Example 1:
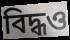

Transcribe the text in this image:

বিদ্ধও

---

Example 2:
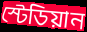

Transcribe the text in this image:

স্টেডিয়ান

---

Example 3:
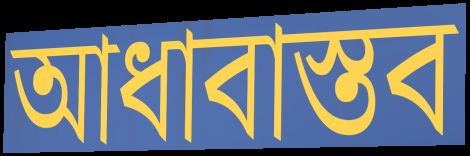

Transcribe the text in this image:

আধাবাস্তব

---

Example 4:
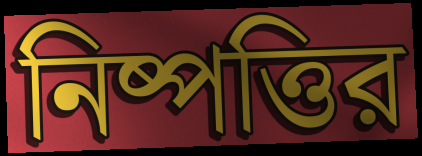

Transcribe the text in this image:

নিষ্পত্তির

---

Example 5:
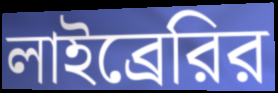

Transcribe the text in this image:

লাইব্রেরির